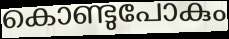
കൊണ്ടുപോകും